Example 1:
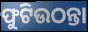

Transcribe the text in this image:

ଫୁଟିଉଠନ୍ତା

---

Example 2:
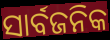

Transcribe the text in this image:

ସାର୍ବଜନିକ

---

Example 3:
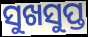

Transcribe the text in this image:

ସୁଖସୁପ୍ତ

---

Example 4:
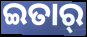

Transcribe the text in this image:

ଇତାର୍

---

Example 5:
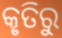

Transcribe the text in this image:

କୃତିରୁ